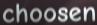
choosen